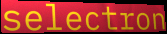
selectron